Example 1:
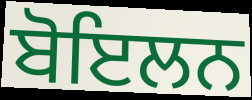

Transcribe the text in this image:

ਬੋਇਲਨ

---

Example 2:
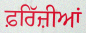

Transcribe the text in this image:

ਫ਼ਰਿੱਜ਼ੀਆਂ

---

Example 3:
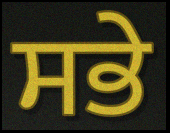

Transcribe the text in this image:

ਸਭੇ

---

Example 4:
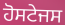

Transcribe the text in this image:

ਹੋਸਟੇਜਸ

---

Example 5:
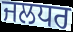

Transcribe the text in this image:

ਜਲਧਰ